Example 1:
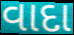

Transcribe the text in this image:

વાદા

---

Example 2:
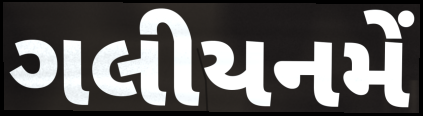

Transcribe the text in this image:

ગલીયનમેં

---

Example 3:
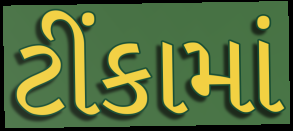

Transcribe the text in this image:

ટીંકામાં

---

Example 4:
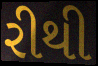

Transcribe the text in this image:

રીથી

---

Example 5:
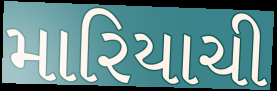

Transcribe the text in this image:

મારિયાચી